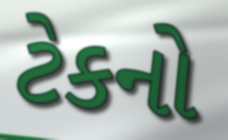
ટેકનો